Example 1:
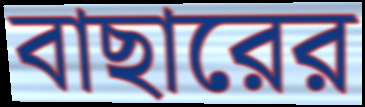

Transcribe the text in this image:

বাছারের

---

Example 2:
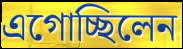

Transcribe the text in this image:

এগোচ্ছিলেন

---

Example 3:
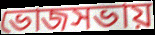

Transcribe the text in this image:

ভোজসভায়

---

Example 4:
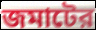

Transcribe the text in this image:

জমাটের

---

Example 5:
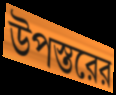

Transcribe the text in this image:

উপস্তরের